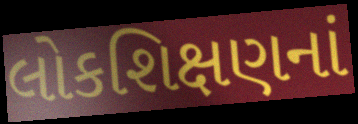
લોકશિક્ષણનાં